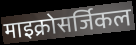
माइक्रोसर्जिकल